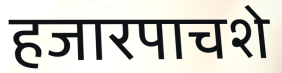
हजारपाचशे